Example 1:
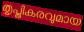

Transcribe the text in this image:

തൃപ്തികരവുമായ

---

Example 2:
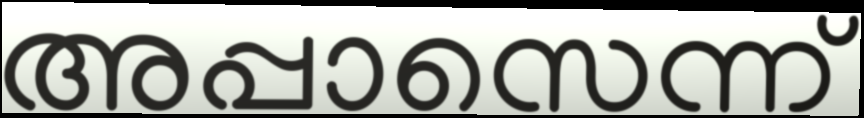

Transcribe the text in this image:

അപ്പാസെന്ന്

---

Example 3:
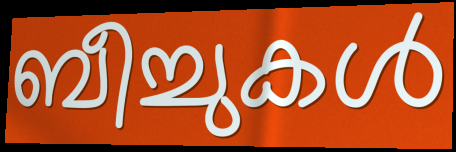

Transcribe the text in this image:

ബീച്ചുകൾ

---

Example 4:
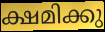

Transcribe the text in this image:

ക്ഷമിക്കു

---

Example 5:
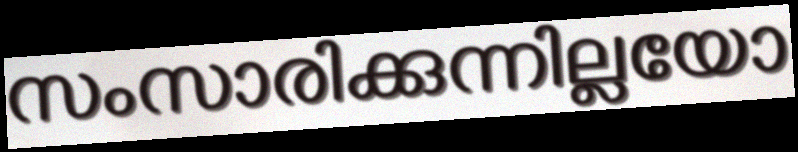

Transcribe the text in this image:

സംസാരിക്കുന്നില്ലയോ